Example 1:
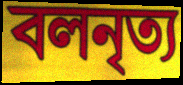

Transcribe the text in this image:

বলনৃত্য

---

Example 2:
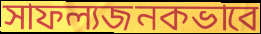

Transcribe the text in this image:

সাফল্যজনকভাবে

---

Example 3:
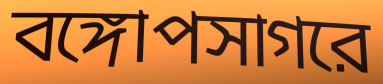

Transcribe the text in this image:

বঙ্গোপসাগরে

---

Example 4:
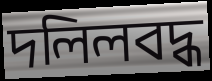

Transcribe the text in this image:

দলিলবদ্ধ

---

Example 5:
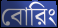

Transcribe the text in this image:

বোরিং